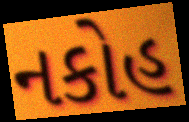
નકોહ